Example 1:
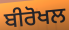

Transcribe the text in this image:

ਬੀਰੋਖਲ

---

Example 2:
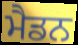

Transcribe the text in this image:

ਮੈਡਨ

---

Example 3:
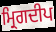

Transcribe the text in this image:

ਮ੍ਰਿਗਦੀਪ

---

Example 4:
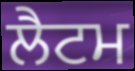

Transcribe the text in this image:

ਲੈਟਮ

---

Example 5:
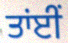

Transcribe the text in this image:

ਤਾਂਈਂ